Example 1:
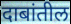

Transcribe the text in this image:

दाबांतील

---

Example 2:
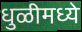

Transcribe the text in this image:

धुळीमध्ये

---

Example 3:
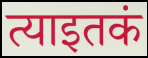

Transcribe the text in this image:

त्याइतकं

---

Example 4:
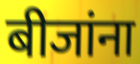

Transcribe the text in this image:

बीजांना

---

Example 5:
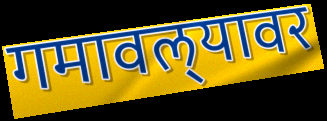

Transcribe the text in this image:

गमावल्यावर